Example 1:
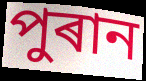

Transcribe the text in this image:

পুৰান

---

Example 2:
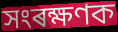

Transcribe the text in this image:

সংৰক্ষণক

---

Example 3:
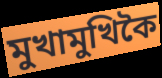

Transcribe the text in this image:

মুখামুখিকৈ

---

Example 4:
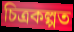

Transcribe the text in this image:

চিত্ৰকল্পত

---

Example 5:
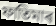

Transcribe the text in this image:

ফাতিমাৰ